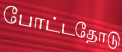
போட்டதோடு